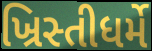
ખ્રિસ્તીધર્મે